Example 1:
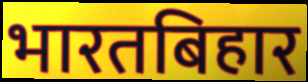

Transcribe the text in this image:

भारतबिहार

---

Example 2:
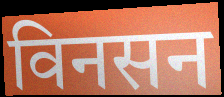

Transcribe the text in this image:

विनसन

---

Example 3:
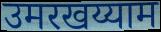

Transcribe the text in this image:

उमरखय्याम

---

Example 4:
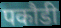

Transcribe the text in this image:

पकौडी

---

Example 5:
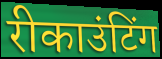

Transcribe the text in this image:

रीकाउंटिंग